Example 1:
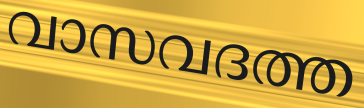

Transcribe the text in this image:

വാസവദത്ത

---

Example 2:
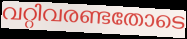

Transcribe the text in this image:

വറ്റിവരണ്ടതോടെ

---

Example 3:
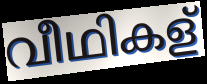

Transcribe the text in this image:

വീഥികള്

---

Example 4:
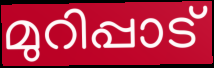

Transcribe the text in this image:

മുറിപ്പാട്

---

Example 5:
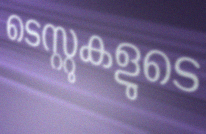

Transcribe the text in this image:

ടെസ്റ്റുകളുടെ